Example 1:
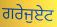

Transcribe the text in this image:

ਗਰੇਜੁਏਟ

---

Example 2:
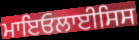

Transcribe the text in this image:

ਮਾਇਓਲਾਈਸਿਸ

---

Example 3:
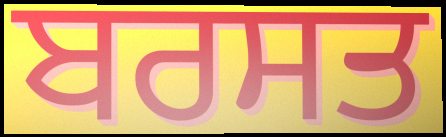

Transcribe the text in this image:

ਬਰਸਤ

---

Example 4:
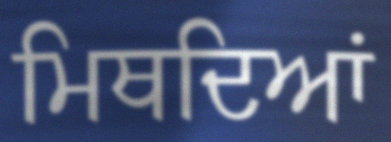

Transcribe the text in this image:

ਮਿਥਦਿਆਂ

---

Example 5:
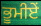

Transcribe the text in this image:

ਭੂਮੀਏਂ